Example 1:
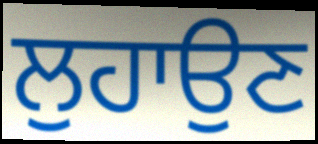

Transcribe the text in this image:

ਲੁਹਾਉਣ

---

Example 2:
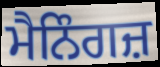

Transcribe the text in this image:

ਮੈਨਿੰਗਜ਼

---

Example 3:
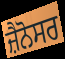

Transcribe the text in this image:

ਜ਼ੈਨੋਸਰ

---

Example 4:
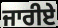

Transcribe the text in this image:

ਜਾਰੀਏ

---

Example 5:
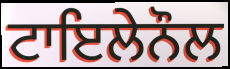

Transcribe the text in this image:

ਟਾਇਲੇਨੌਲ